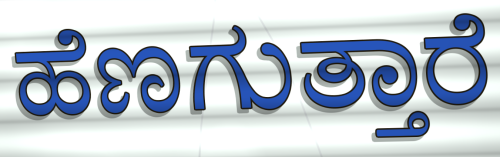
ಹೆಣಗುತ್ತಾರೆ